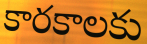
కారకాలకు